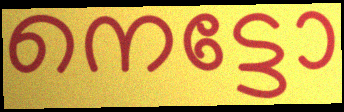
നെട്ടോ